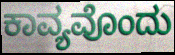
ಕಾವ್ಯವೊಂದು